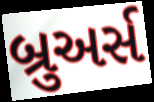
બ્રુઅર્સ